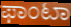
ಫಾಂಟಾ